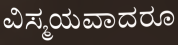
ವಿಸ್ಮಯವಾದರೂ